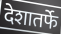
देशातर्फे